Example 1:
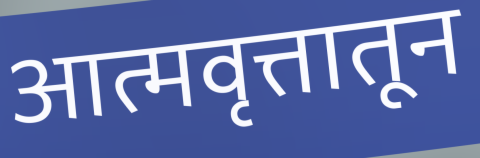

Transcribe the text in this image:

आत्मवृत्तातून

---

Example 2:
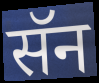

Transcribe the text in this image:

सॅन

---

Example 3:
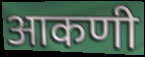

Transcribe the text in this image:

आकणी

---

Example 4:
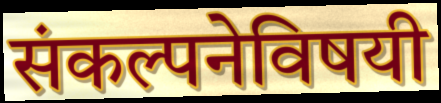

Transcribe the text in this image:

संकल्पनेविषयी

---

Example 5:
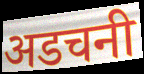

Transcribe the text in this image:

अडचनी